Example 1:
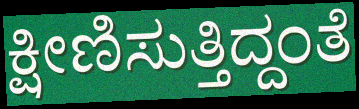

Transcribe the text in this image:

ಕ್ಷೀಣಿಸುತ್ತಿದ್ದಂತೆ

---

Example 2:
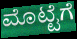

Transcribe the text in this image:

ಮೊಟ್ಟೆಗೆ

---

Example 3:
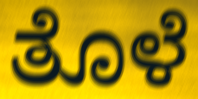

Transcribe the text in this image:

ತೊಳೆ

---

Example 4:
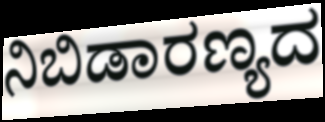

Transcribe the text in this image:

ನಿಬಿಡಾರಣ್ಯದ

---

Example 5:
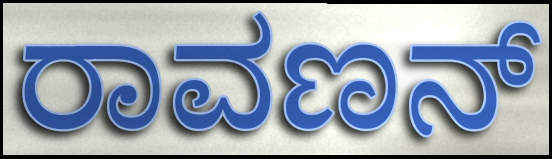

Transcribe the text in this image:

ರಾವಣನ್